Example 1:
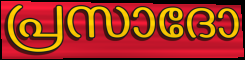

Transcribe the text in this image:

പ്രസാദോ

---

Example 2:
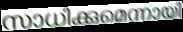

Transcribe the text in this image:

സാധിക്കുമെന്നായി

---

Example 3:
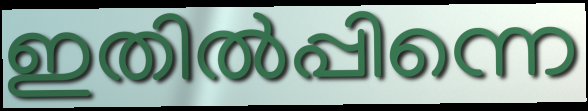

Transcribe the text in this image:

ഇതിൽപ്പിന്നെ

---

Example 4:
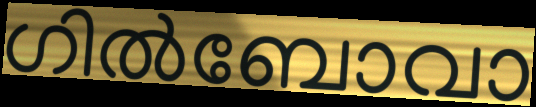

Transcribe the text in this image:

ഗിൽബോവാ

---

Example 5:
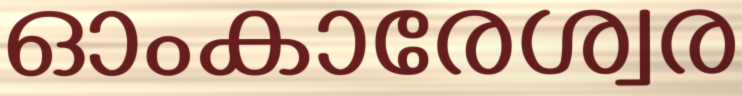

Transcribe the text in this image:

ഓംകാരേശ്വര